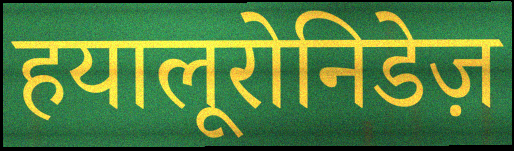
हयालूरोनिडेज़